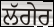
ਲੱਗੇਰ